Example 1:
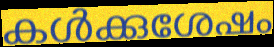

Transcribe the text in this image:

കൾക്കുശേഷം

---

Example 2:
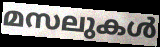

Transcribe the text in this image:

മസലുകൾ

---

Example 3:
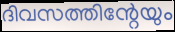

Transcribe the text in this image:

ദിവസത്തിന്റേയും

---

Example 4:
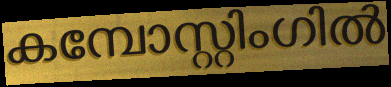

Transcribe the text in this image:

കമ്പോസ്റ്റിംഗിൽ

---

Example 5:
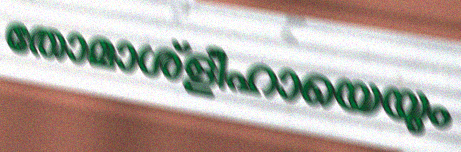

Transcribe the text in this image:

തോമാശ്ളീഹായെയും